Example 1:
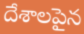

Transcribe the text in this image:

దేశాలపైన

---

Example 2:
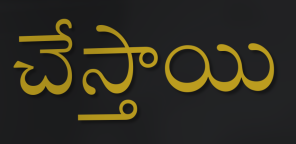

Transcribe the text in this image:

చేస్తాయి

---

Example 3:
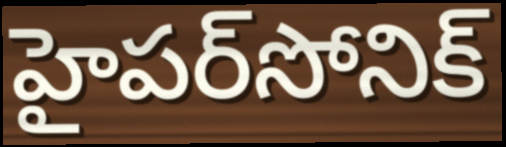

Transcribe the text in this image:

హైపర్‌సోనిక్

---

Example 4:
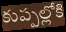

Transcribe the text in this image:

కుప్పల్లోకి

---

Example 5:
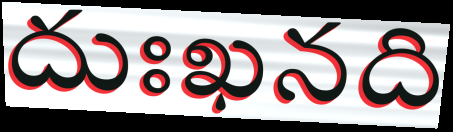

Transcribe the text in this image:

దుఃఖనది